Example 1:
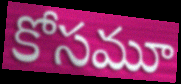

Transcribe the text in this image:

కోసమూ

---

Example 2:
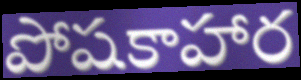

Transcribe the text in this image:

పోషకాహార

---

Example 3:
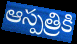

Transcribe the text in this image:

ఆస్పత్రికి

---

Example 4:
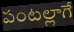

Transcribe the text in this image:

పంటల్లాగే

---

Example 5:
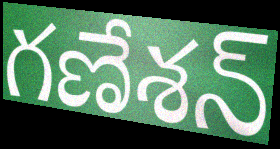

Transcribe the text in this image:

గణేశన్